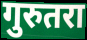
गुरुतरा